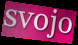
svojo